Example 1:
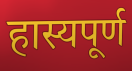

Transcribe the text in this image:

हास्यपूर्ण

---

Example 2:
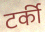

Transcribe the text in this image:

टर्की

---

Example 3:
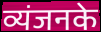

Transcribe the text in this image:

व्यंजनके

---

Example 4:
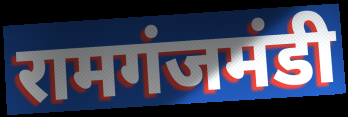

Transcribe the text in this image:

रामगंजमंडी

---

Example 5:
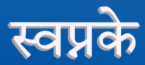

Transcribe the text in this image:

स्वप्नके